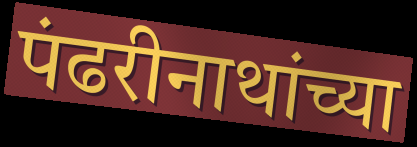
पंढरीनाथांच्या